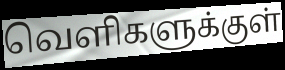
வெளிகளுக்குள்